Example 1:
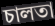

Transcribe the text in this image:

চালতা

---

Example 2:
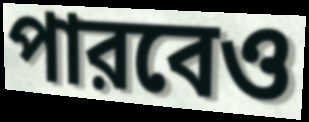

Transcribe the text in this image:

পারবেও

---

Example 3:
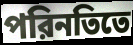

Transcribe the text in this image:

পরিনতিতে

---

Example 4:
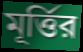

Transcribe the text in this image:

মূর্ত্তির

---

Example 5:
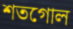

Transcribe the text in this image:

শতগোল